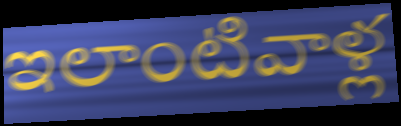
ఇలాంటివాళ్ల